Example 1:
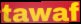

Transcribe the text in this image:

tawaf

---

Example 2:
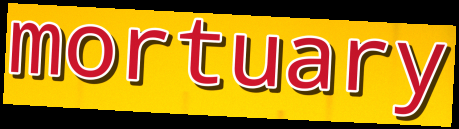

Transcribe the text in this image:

mortuary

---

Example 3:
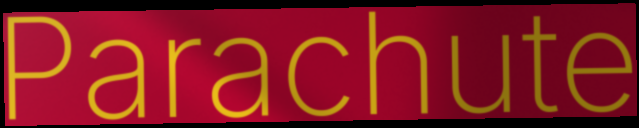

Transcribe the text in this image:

Parachute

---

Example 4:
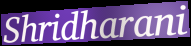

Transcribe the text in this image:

Shridharani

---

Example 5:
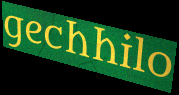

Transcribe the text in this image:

gechhilo